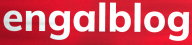
engalblog